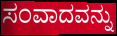
ಸಂವಾದವನ್ನು